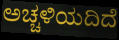
ಅಚ್ಚಳಿಯದಿದೆ